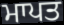
ਮਾਪਤ